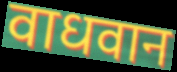
वाधवान